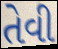
તેવી